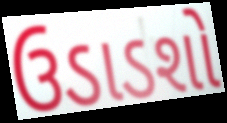
ઉડાડશો